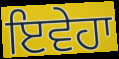
ਇਵੇਹਾ